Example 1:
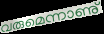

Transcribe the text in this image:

വരുമെന്നാണു്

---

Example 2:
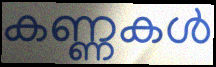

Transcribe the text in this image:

കണ്ണകൾ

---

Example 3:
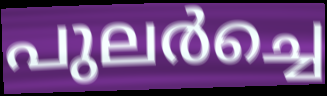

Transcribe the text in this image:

പുലർച്ചെ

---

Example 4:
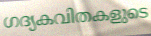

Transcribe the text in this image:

ഗദ്യകവിതകളുടെ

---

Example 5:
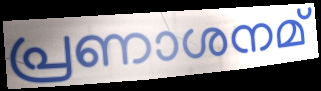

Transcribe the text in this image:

പ്രണാശനമ്